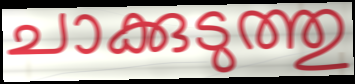
ചാക്കുടുത്തു